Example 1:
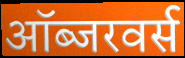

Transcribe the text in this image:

ऑब्जरवर्स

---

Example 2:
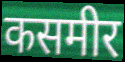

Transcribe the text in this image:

कसमीर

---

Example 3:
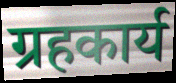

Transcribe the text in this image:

ग्रहकार्य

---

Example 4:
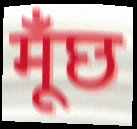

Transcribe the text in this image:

मूँछ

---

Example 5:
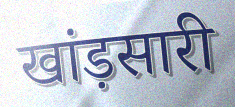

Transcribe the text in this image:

खांड़सारी